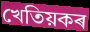
খেতিয়কৰ